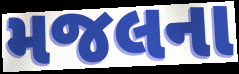
મજલના